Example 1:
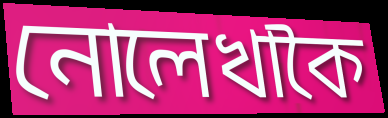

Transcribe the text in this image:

নোলেখাকৈ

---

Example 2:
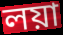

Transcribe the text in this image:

লয়া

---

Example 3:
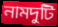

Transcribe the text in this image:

নামদুটি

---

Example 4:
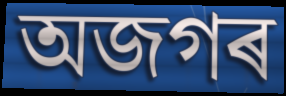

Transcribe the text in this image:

অজগৰ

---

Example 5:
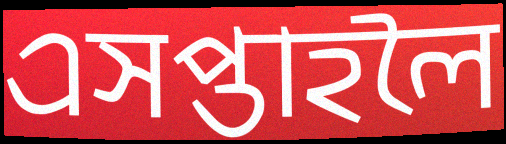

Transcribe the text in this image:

এসপ্তাহলৈ